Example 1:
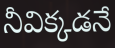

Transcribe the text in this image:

నీవిక్కడనే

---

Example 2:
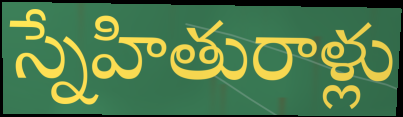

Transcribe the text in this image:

స్నేహితురాళ్లు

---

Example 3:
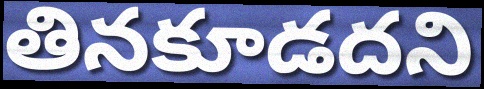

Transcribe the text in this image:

తినకూడదని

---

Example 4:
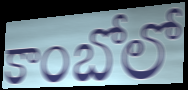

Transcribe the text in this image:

కాంబోలో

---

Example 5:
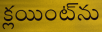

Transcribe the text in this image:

క్లయింట్‌ను